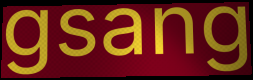
gsang